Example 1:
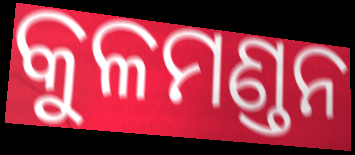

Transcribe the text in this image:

କୁଳମଣ୍ଡନ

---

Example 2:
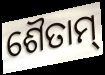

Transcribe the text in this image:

ଶୈତାମ୍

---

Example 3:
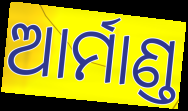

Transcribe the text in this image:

ଆର୍ମାଣ୍ଡ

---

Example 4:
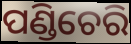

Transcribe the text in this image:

ପଣ୍ଡିଚେରି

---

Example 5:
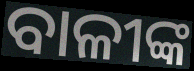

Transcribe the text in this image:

ବାଳୀଙ୍କ